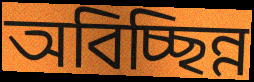
অবিচ্ছিন্ন